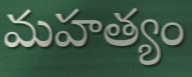
మహత్యం